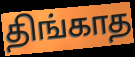
திங்காத